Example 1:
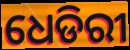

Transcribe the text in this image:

ଧେଡିରୀ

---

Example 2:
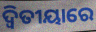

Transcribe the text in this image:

ଦ୍ଵିତୀୟାରେ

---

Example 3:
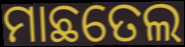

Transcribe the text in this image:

ମାଛତେଲ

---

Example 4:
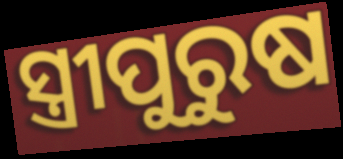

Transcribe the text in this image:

ସ୍ତ୍ରୀପୁରୁଷ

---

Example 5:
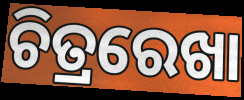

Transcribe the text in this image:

ଚିତ୍ରରେଖା